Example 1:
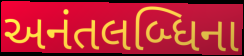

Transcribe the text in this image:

અનંતલબ્ધિના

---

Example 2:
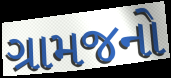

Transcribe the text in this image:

ગ્રામજનો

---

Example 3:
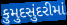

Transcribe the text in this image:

કુમુદસુંદરીમાં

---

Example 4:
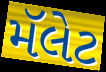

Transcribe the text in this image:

મૅલેટ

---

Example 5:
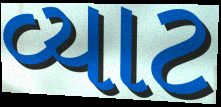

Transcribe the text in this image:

વ્યાટ